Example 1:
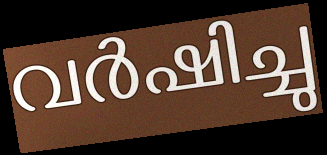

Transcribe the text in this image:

വർഷിച്ചു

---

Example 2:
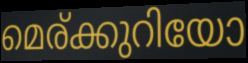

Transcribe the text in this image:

മെര്ക്കുറിയോ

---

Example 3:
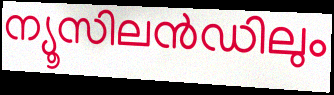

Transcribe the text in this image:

ന്യൂസിലൻഡിലും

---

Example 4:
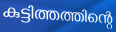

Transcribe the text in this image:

കുട്ടിത്തത്തിന്റെ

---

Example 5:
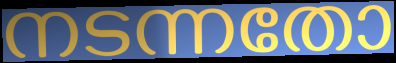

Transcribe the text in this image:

നടന്നതോ